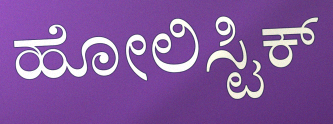
ಹೋಲಿಸ್ಟಿಕ್